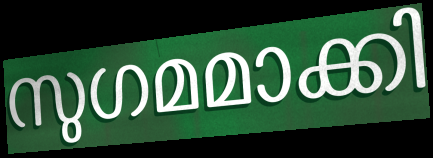
സുഗമമാക്കി